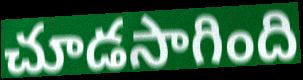
చూడసాగింది